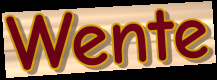
Wente